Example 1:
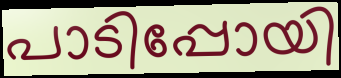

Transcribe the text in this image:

പാടിപ്പോയി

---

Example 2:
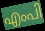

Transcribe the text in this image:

എംപി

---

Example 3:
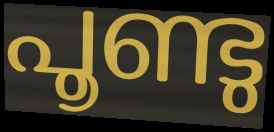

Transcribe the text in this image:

പൂണ്ടു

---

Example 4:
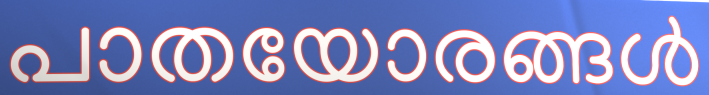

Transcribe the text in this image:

പാതയോരങ്ങൾ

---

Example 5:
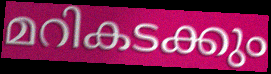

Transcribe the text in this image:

മറികടക്കും